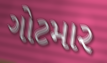
ગોટમાર